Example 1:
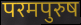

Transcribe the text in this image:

परमपुरुष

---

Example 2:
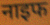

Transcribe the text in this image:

नाइफ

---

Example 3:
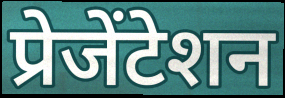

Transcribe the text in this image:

प्रेजेंटेशन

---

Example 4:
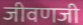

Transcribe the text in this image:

जीवणजी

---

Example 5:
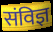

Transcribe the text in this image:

संविज्ञ